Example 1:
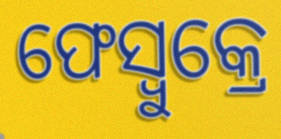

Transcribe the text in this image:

ଫେସ୍ବୁକ୍ରେ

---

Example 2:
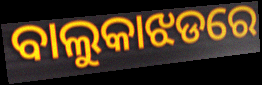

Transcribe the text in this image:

ବାଲୁକାଝଡରେ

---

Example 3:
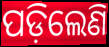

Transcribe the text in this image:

ପଡ଼ିଲେଣି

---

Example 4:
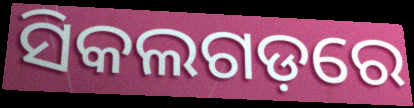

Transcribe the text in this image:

ସିକଲଗଡ଼ରେ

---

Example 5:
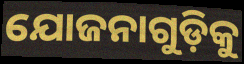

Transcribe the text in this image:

ଯୋଜନାଗୁଡ଼ିକୁ